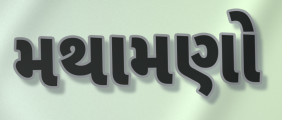
મથામણો